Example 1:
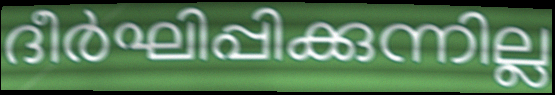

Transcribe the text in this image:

ദീർഘിപ്പിക്കുന്നില്ല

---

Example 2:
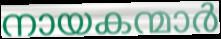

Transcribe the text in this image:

നായകന്മാർ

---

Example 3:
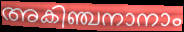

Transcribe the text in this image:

അകിഞ്ചനാനാം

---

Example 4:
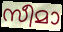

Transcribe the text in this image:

സീമാ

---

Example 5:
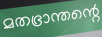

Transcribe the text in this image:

മതഭ്രാന്തന്റെ